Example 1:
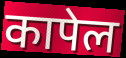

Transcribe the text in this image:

कापेल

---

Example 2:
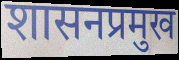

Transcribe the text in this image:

शासनप्रमुख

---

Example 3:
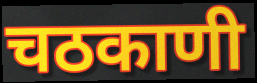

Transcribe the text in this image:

चठकाणी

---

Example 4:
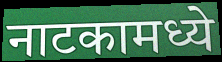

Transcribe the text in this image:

नाटकामध्ये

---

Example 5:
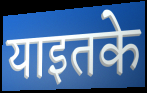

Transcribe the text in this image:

याइतके